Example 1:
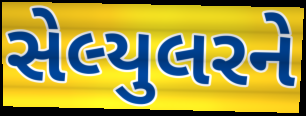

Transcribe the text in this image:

સેલ્યુલરને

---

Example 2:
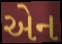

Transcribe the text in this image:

એન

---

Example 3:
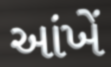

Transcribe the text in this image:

આંખેં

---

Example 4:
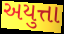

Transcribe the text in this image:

અયુત્તા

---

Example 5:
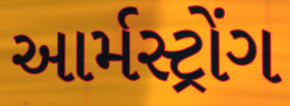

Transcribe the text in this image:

આર્મસ્ટ્રોંગ